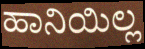
ಹಾನಿಯಿಲ್ಲ